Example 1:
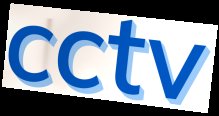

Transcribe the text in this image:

cctv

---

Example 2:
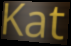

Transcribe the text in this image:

Kat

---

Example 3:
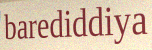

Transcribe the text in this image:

barediddiya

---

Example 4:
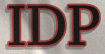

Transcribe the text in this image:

IDP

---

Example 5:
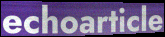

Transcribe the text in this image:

echoarticle